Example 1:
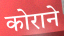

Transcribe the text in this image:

कोराने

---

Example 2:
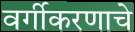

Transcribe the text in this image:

वर्गीकरणाचे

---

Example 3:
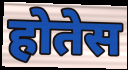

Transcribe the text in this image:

होतेस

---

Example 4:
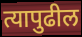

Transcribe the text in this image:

त्यापुढील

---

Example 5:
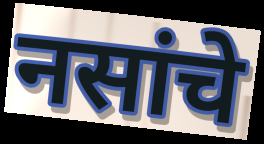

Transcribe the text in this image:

नसांचे